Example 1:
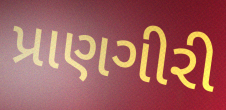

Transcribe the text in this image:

પ્રાણગીરી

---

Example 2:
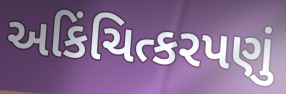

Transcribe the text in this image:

અકિંચિત્કરપણું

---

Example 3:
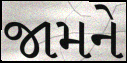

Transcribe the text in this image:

જામને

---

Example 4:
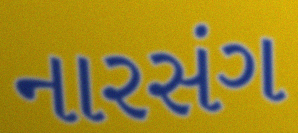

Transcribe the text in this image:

નારસંગ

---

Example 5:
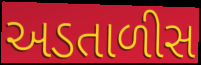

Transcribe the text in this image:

અડતાળીસ